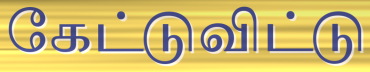
கேட்டுவிட்டு